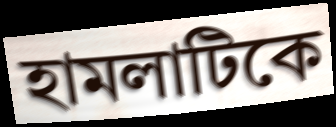
হামলাটিকে